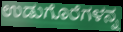
ಉಡುಗೊರೆಗಳನ್ನ